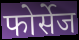
फोर्सेज